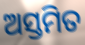
ଅସ୍ତମିତ